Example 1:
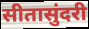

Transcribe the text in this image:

सीतासुंदरी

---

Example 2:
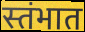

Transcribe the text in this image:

स्तंभात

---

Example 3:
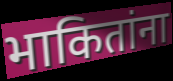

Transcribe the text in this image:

भाकितांना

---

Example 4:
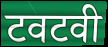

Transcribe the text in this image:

टवटवी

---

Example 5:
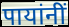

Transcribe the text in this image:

पायांनीं